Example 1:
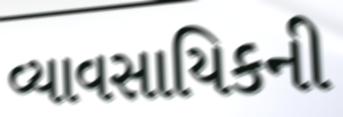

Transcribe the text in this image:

વ્યાવસાયિકની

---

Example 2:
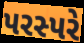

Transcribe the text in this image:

પરસ્પરે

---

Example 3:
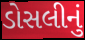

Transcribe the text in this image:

ડોસલીનું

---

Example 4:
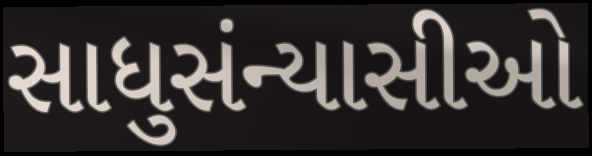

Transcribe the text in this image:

સાધુસંન્યાસીઓ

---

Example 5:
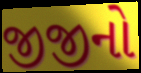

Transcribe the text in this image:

જીજીનો